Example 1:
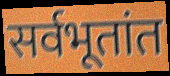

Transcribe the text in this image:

सर्वभूतांत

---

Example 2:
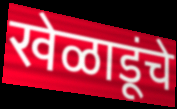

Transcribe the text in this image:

खेळाडूंचे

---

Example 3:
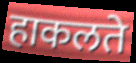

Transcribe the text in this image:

हाकलते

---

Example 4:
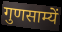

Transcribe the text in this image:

गुणसाम्यें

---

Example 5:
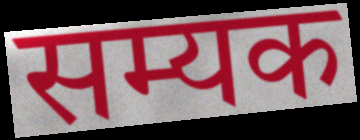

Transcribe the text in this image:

सम्‍यक